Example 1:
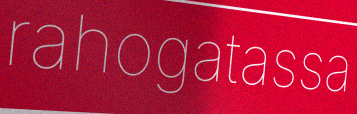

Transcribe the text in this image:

rahogatassa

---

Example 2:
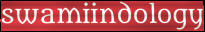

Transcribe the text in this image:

swamiindology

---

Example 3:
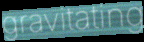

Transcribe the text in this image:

gravitating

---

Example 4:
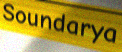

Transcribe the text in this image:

Soundarya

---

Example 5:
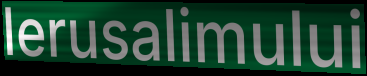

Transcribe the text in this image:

Ierusalimului